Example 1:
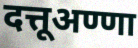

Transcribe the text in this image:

दत्तूअण्णा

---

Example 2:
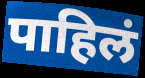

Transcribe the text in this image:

पाहिलं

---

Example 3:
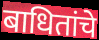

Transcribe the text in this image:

बाधितांचे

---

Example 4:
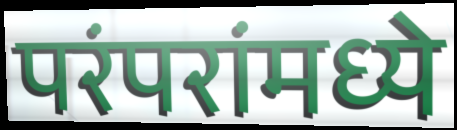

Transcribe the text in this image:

परंपरांमध्ये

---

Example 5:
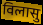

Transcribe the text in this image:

विलासु